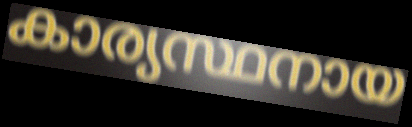
കാര്യസ്ഥനായ